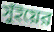
সুঁইয়ের